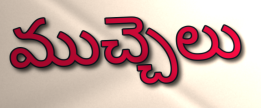
ముచ్చెలు